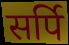
सर्पि